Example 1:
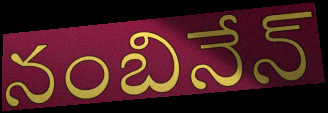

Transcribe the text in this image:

నంబినేన్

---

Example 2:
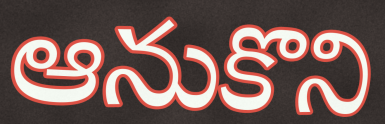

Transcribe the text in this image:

ఆనుకొని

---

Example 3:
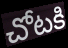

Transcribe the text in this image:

చోటకి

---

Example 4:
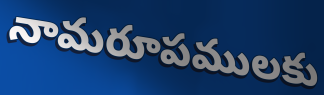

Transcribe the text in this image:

నామరూపములకు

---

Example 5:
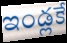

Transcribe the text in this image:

ఇండ్లకే